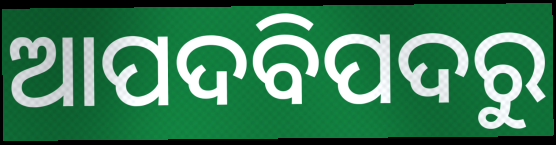
ଆପଦବିପଦରୁ